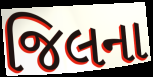
જિલના